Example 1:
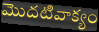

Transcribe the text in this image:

మొదటివాక్యం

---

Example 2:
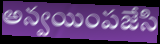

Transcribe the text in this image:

అన్వయింపజేసి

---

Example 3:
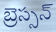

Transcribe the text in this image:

బ్రెస్సన్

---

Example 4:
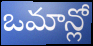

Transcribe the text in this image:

ఒమాన్లో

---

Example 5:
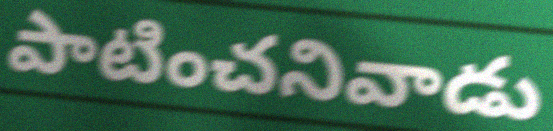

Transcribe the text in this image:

పాటించనివాడు